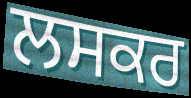
ਲਸਕਰ